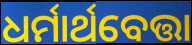
ଧର୍ମାର୍ଥବେତ୍ତା